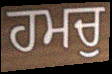
ਹਮਚੁ